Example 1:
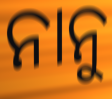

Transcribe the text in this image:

ନାନୁ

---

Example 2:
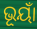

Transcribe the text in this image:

ଭୂୟାଁ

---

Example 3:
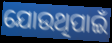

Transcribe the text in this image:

ଯୋଉଥିପାଇଁ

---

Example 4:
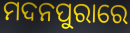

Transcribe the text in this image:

ମଦନପୁରାରେ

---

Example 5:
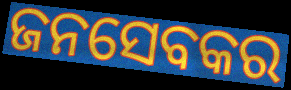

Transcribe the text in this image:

ଜନସେବକର